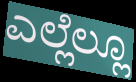
ಎಲ್ಲೆಲ್ಲೂ